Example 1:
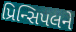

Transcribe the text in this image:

પ્રિન્સિપલને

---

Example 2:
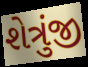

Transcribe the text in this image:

શેત્રુંજી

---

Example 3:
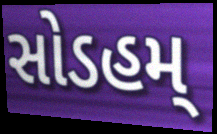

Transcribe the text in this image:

સોડહમ્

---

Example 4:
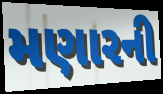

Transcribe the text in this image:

મણારની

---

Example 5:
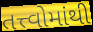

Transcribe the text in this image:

તત્ત્વોમાંથી